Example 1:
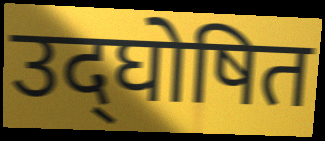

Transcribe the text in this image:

उद्घोषित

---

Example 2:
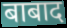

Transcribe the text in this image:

बाबाद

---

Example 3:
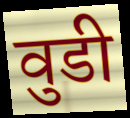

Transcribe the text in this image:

वुडी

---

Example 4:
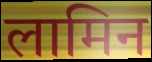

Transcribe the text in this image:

लामिन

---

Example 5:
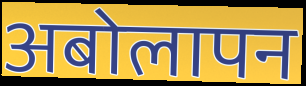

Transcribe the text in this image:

अबोलापन